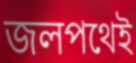
জলপথেই